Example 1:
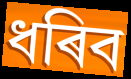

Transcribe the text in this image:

ধৰিব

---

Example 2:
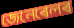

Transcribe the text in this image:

জেনেৰেলৰ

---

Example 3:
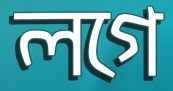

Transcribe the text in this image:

লগে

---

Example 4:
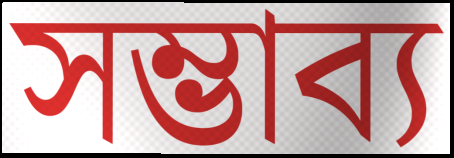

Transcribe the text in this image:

সম্ভাব্য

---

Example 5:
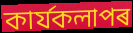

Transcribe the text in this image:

কাৰ্যকলাপৰ